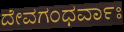
ದೇವಗಂಧರ್ವಾಃ